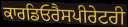
ਕਾਰਡਿਓਰੈਸਪੀਰੇਟਰੀ